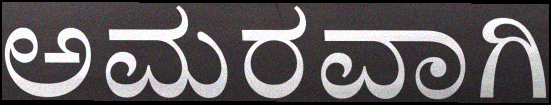
ಅಮರವಾಗಿ